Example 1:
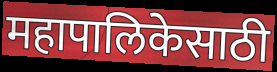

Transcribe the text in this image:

महापालिकेसाठी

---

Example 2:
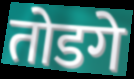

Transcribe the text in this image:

तोडगे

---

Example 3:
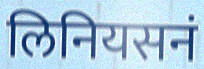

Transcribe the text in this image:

लिनियसनं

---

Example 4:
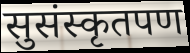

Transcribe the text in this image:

सुसंस्कृतपण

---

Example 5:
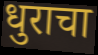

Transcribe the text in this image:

धुराचा